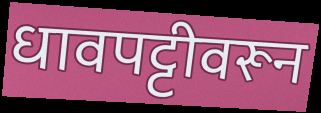
धावपट्टीवरून